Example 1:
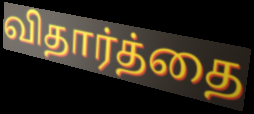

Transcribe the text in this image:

விதார்த்தை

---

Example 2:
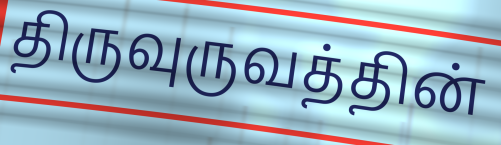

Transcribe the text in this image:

திருவுருவத்தின்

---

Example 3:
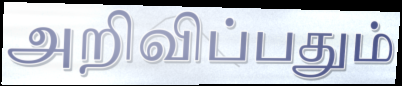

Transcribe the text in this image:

அறிவிப்பதும்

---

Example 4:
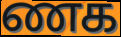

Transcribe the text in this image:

ணக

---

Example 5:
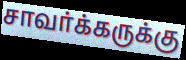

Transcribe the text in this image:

சாவர்க்கருக்கு